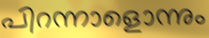
പിറന്നാളൊന്നും